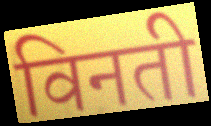
विनती